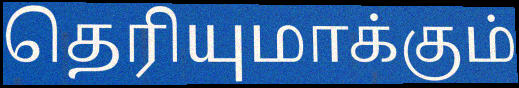
தெரியுமாக்கும்